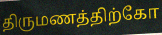
திருமணத்திற்கோ